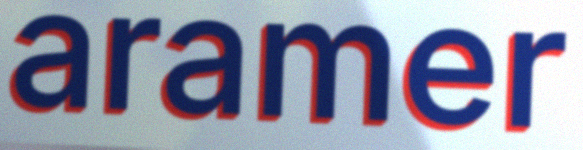
aramer